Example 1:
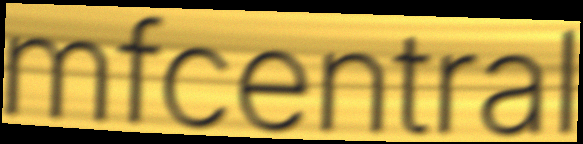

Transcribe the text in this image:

mfcentral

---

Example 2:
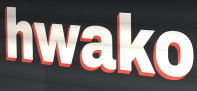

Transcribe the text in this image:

hwako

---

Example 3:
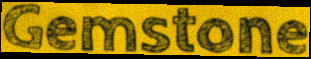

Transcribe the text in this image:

Gemstone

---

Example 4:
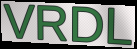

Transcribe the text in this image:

VRDL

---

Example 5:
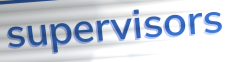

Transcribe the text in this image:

supervisors